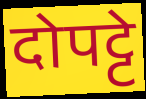
दोपट्टे